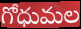
గోధుమల